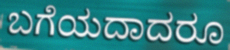
ಬಗೆಯದಾದರೂ